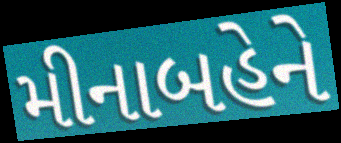
મીનાબહેને